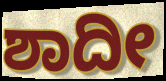
ಶಾದೀ